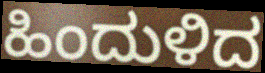
ಹಿಂದುಳಿದ